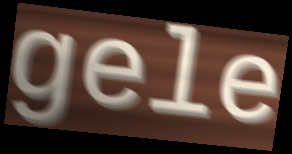
gele